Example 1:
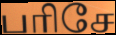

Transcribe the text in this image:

பரிசே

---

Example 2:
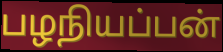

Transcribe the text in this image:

பழநியப்பன்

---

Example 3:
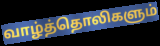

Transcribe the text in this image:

வாழ்த்தொலிகளும்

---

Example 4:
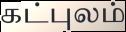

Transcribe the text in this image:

கட்புலம்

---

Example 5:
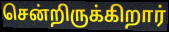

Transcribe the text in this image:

சென்றிருக்கிறார்